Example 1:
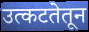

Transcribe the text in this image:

उत्कटतेतून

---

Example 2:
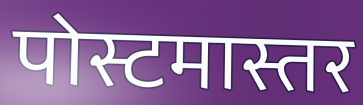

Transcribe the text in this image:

पोस्टमास्तर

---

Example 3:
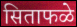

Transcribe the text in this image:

सिताफळे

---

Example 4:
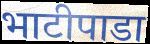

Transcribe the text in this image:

भाटीपाडा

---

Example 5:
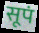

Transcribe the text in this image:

सूपं